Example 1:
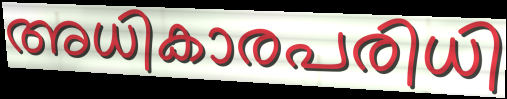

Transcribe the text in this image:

അധികാരപരിധി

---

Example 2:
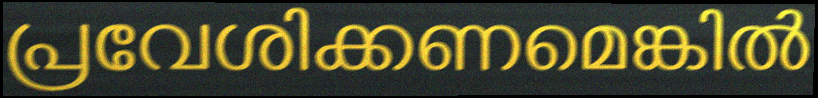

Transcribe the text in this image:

പ്രവേശിക്കണമെങ്കിൽ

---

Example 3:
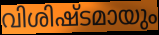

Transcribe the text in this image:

വിശിഷ്ടമായും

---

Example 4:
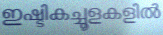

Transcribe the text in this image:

ഇഷ്ടികച്ചൂളകളിൽ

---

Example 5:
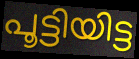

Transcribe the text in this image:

പൂട്ടിയിട്ട